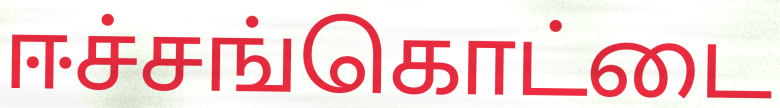
ஈச்சங்கொட்டை